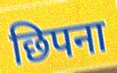
छिपना